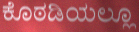
ಕೊಠಡಿಯಲ್ಲೂ